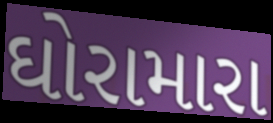
ઘોરામારા